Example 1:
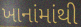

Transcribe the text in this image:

ખાનાંમાંથી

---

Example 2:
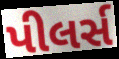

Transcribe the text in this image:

પીલર્સ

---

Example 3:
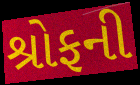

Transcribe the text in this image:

શ્રોફની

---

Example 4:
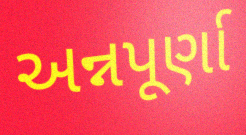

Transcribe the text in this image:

અન્નપૂર્ણા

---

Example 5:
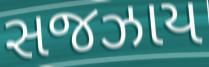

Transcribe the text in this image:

સજઝાય